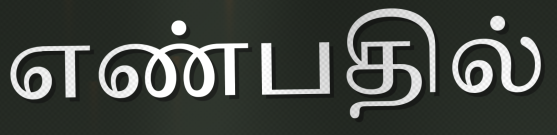
எண்பதில்